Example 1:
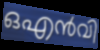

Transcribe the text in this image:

ഒഎൻവി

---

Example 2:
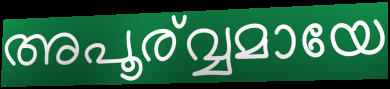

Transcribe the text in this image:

അപൂര്വ്വമായേ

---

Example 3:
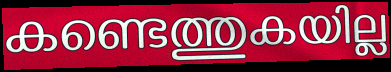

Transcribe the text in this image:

കണ്ടെത്തുകയില്ല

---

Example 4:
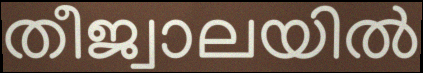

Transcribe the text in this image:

തീജ്വാലയിൽ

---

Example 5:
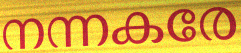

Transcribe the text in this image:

നന്നകരേ